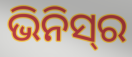
ଭିନିସ୍‌ର